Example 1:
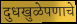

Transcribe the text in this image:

दुधखुळेपणाचे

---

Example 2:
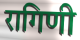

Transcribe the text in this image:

रागिणी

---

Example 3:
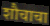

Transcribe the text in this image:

शौचाचा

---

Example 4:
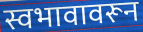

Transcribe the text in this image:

स्वभावावरून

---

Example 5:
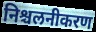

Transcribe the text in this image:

निश्चलनीकरण